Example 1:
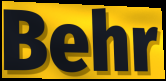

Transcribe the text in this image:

Behr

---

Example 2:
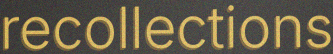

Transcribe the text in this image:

recollections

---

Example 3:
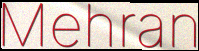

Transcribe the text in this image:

Mehran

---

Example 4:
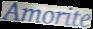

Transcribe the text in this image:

Amorite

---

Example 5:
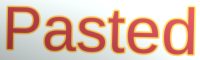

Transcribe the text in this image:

Pasted